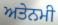
ਅਤੇਨਮੀ